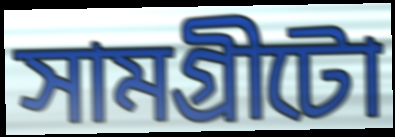
সামগ্ৰীটো